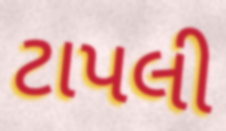
ટાપલી